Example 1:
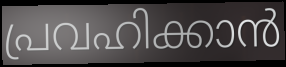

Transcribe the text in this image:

പ്രവഹിക്കാൻ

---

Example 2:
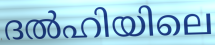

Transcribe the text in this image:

ദൽഹിയിലെ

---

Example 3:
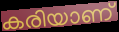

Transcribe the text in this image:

കരിയാണ്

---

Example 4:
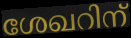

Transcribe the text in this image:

ശേഖറിന്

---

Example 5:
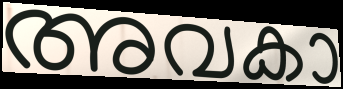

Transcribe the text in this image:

അവകാ